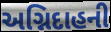
અગ્નિદાહની